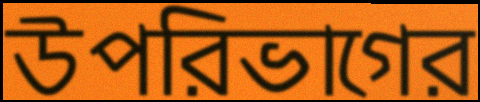
উপরিভাগের